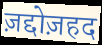
ज़द्दोज़हद